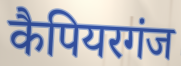
कैपियरगंज